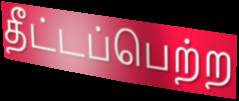
தீட்டப்பெற்ற